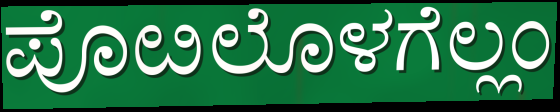
ಪೊೞಲೊಳಗೆಲ್ಲಂ